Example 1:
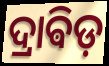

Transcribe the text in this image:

ଦ୍ରାଵିଡ଼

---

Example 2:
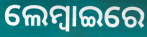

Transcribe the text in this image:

ଲେମ୍ବାଇରେ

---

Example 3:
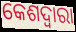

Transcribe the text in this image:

କେଶଦ୍ବାରା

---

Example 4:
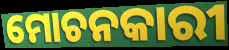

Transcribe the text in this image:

ମୋଚନକାରୀ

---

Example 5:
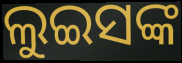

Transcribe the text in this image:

ଲୁଇସଙ୍କ